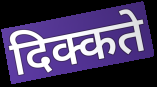
दिक्कते